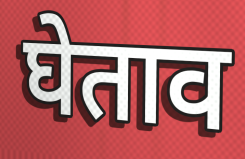
घेताव